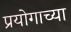
प्रयोगाच्या